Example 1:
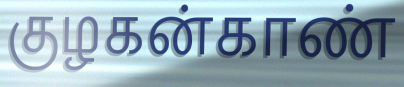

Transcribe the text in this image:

குழகன்காண்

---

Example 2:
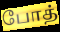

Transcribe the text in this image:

போத்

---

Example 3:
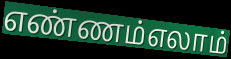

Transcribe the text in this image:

எண்ணம்எலாம்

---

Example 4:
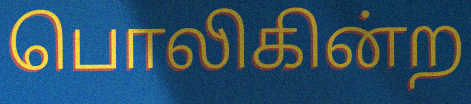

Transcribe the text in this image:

பொலிகின்ற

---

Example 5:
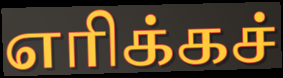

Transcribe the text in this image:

எரிக்கச்